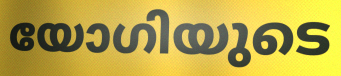
യോഗിയുടെ